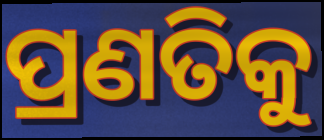
ପ୍ରଣତିକୁ